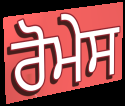
ਰੋਮੇਸ